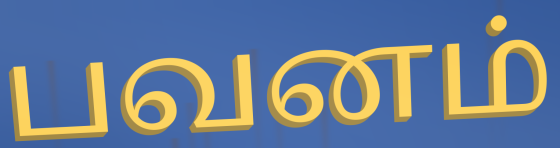
பவனம்